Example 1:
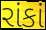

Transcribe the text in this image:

રાંકાં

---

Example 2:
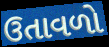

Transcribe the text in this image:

ઉતાવળો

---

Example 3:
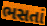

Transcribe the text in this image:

ભસતાં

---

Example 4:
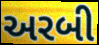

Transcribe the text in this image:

અરબી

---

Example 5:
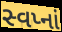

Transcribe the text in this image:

સ્વપ્નાં